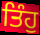
ਤਿੰਹੁ